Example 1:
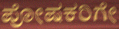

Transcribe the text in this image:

ಪೋಷಕರಿಗೇ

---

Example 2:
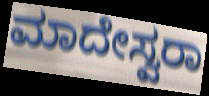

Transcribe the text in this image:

ಮಾದೇಸ್ವರಾ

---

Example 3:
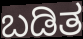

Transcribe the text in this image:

ಬಡಿತ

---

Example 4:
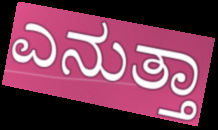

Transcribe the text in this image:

ಎನುತ್ತಾ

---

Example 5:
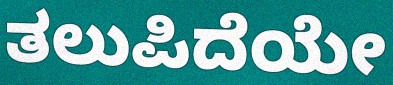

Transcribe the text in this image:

ತಲುಪಿದೆಯೇ